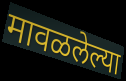
मावळलेल्या